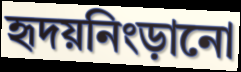
হৃদয়নিংড়ানো